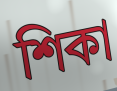
শিকা